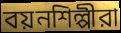
বয়নশিল্পীরা